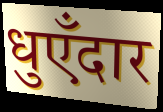
धुएँदार